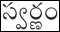
స్వర్ణం